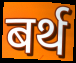
बर्थ